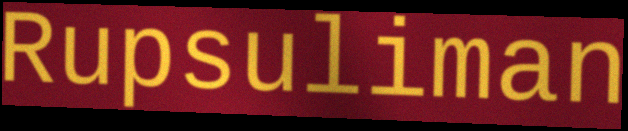
Rupsuliman